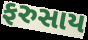
ફરુસાય